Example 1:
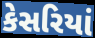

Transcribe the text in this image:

કેસરિયાં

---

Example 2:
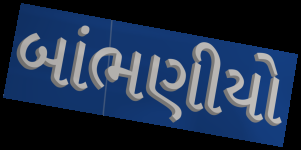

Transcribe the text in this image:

બાંભણીયો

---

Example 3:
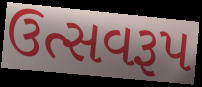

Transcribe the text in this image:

ઉત્સવરૂપ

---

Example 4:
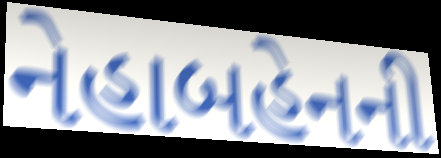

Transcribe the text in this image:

નેહાબહેનની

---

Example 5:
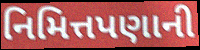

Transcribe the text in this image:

નિમિત્તપણાની